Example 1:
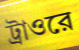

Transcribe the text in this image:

ট্রাওরে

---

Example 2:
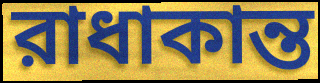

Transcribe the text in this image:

রাধাকান্ত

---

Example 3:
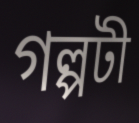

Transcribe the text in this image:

গল্পটী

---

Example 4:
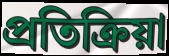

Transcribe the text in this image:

প্রতিক্রিয়া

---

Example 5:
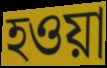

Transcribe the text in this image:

হওয়া